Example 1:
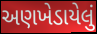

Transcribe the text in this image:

અણખેડાયેલું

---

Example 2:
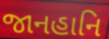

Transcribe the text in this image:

જાનહાનિ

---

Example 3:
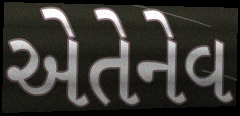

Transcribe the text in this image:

એતેનેવ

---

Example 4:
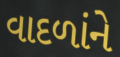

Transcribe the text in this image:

વાદળાંને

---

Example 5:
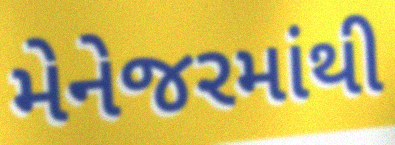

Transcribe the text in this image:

મેનેજરમાંથી